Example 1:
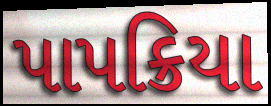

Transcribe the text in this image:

પાપક્રિયા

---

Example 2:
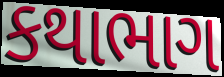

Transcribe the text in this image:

કથાભાગ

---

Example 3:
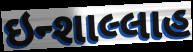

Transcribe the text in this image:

ઇન્શાલ્લાહ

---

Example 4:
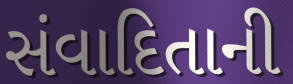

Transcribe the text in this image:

સંવાદિતાની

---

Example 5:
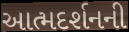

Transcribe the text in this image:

આત્મદર્શનની